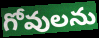
గోవులను